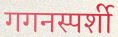
गगनस्पर्शी